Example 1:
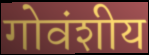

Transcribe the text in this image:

गोवंशीय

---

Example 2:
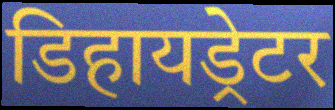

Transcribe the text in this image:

डिहायड्रेटर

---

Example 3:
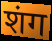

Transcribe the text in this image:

शंग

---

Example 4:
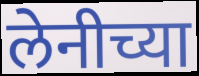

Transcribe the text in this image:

लेनीच्या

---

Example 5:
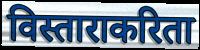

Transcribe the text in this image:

विस्ताराकरिता